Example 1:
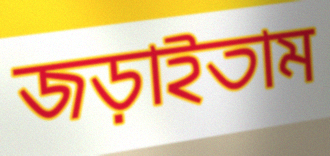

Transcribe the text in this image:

জড়াইতাম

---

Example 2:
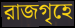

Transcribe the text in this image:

রাজগৃহে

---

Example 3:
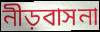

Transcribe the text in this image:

নীড়বাসনা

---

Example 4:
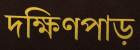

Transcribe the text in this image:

দক্ষিণপাড়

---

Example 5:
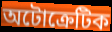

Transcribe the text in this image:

অটোক্রেটিক